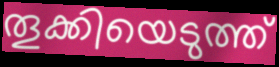
തൂക്കിയെടുത്ത്